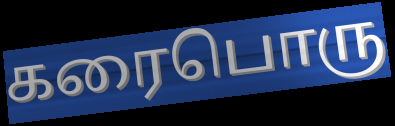
கரைபொரு